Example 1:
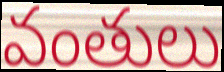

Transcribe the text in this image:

వంతులు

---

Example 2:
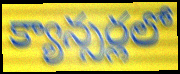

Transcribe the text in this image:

క్యాన్సర్లలో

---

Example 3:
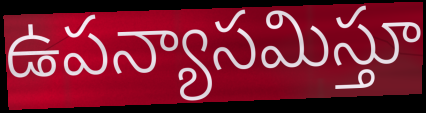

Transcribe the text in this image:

ఉపన్యాసమిస్తూ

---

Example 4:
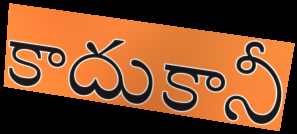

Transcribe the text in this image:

కాదుకానీ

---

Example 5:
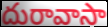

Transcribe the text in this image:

దురావాసా